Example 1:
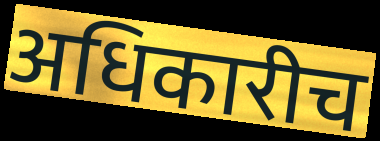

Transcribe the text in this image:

अधिकारीच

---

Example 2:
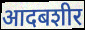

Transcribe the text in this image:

आदबशीर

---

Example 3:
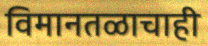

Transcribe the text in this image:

विमानतळाचाही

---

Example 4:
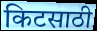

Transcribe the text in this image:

किटसाठी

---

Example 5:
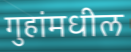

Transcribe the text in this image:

गुहांमधील